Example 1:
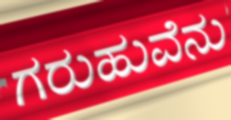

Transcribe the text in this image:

ಗರುಹುವೆನು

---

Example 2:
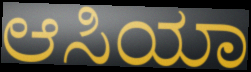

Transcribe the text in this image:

ಆಸಿಯಾ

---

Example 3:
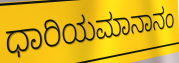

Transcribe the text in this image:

ಧಾರಿಯಮಾನಾನಂ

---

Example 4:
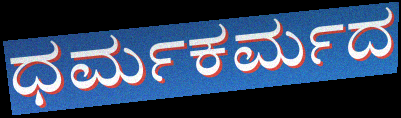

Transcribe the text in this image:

ಧರ್ಮಕರ್ಮದ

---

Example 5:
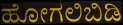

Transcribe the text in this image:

ಹೋಗಲಿಬಿಡಿ